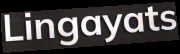
Lingayats